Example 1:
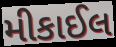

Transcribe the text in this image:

મીકાઈલ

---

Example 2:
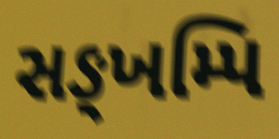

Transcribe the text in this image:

સઙ્ખમ્પિ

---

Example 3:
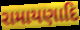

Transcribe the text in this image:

રામાયણાદિ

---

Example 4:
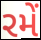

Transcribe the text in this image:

રમેં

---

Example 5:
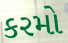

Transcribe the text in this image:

કરમો